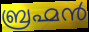
ബ്രഹ്മൻ